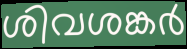
ശിവശങ്കർ